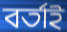
বৰ্তাই